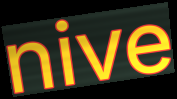
nive